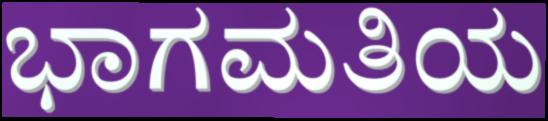
ಭಾಗಮತಿಯ